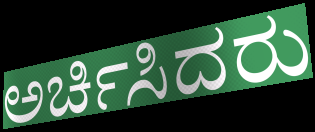
ಅರ್ಚಿಸಿದರು